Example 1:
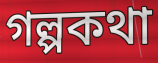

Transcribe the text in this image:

গল্পকথা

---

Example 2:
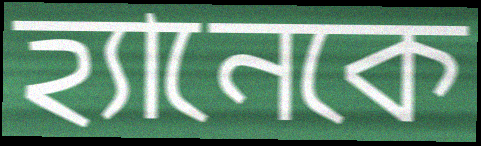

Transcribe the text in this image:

হ্যানেকে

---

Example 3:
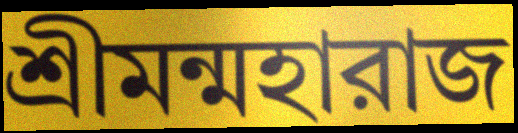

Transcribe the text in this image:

শ্রীমন্মহারাজ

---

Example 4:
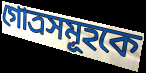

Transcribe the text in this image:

গোত্রসমূহকে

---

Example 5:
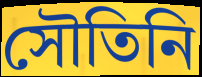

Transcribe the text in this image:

সৌতিনি